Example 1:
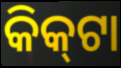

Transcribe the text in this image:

କିକ୍‍ଟା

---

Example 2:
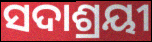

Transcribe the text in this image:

ସଦାଶ୍ରୟୀ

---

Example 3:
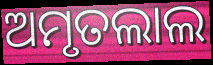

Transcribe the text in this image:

ଅମୃତଲାଲ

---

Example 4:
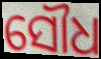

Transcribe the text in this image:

ସୌଧ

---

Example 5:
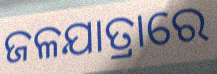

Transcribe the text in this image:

ଜଳଯାତ୍ରାରେ